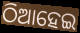
ଠିଆହେଇ